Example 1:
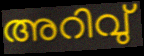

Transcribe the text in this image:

അറിവു്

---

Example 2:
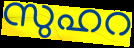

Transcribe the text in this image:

സുഹറ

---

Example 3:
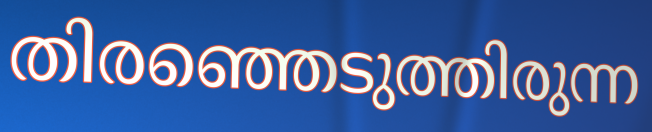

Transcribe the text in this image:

തിരഞ്ഞെടുത്തിരുന്ന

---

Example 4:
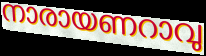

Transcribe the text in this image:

നാരായണറാവു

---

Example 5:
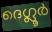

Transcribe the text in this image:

ദെഗ്ലൂർ